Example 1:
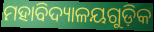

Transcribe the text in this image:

ମହାବିଦ୍ୟାଳୟଗୁଡ଼ିକ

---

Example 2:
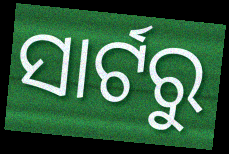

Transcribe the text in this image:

ସାର୍ଟରୁ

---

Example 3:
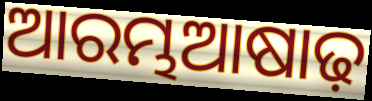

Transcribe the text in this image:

ଆରମ୍ଭଆଷାଢ଼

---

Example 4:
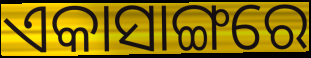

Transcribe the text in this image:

ଏକାସାଙ୍ଗରେ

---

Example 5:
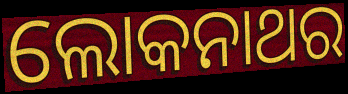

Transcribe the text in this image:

ଲୋକନାଥର